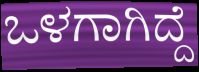
ಒಳಗಾಗಿದ್ದೆ